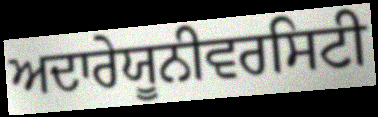
ਅਦਾਰੇਯੂਨੀਵਰਸਿਟੀ